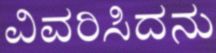
ವಿವರಿಸಿದನು